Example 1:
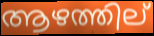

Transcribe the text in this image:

ആഴത്തില്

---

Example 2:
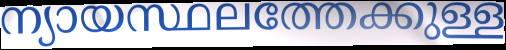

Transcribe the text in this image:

ന്യായസ്ഥലത്തേക്കുള്ള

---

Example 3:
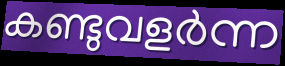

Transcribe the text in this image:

കണ്ടുവളർന്ന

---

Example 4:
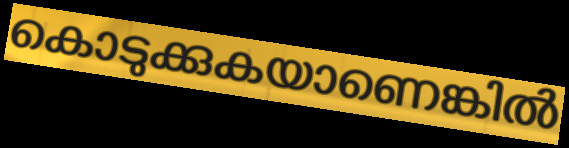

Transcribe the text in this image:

കൊടുക്കുകയാണെങ്കിൽ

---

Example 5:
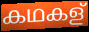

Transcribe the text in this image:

കഥകള്